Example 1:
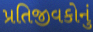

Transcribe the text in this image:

પ્રતિજીવકોનું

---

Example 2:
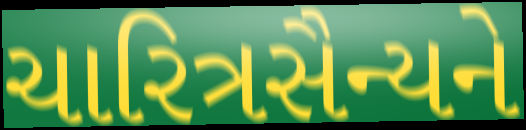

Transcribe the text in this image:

ચારિત્રસૈન્યને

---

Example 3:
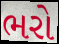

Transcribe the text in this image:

ભરો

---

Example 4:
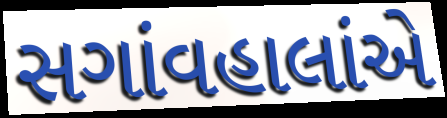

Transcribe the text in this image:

સગાંવહાલાંએ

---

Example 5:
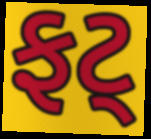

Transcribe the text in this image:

ફટ્